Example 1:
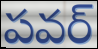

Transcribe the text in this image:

పవర్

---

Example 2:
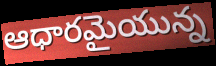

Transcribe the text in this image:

ఆధారమైయున్న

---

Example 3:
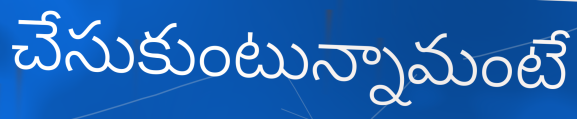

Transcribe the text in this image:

చేసుకుంటున్నామంటే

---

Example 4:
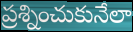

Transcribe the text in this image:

ప్రశ్నించుకునేలా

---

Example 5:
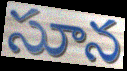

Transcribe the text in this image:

సూన